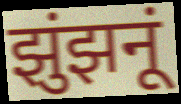
झुंझनूं